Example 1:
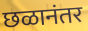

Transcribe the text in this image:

छळानंतर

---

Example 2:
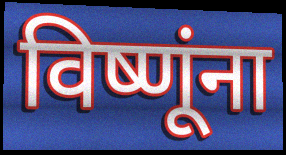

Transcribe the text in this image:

विष्णूंना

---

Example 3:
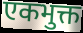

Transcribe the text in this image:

एकभुक्त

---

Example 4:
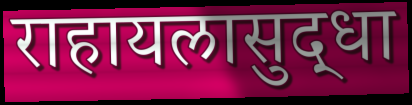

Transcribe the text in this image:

राहायलासुद्धा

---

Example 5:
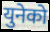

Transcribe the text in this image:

युनेको